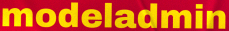
modeladmin